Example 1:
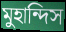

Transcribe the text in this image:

মুহান্দিস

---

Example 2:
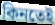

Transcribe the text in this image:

কিনতেই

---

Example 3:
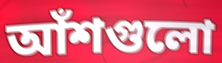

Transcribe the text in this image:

আঁশগুলো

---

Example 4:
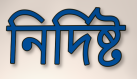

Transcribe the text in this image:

নির্দিষ্ট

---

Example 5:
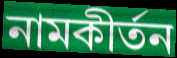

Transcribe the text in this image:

নামকীর্তন